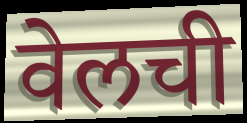
वेलची